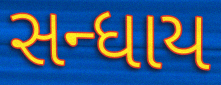
સન્ધાય